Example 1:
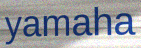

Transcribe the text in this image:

yamaha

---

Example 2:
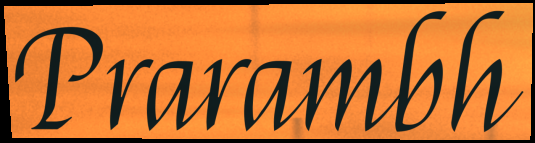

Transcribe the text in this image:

Prarambh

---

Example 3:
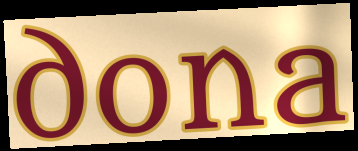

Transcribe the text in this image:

dona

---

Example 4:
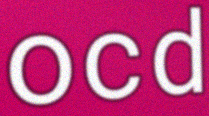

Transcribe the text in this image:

ocd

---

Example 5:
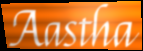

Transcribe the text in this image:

Aastha